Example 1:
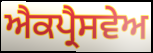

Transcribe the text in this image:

ਐਕਪ੍ਰੈਸਵੇਅ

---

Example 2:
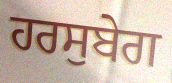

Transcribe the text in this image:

ਹਰਸੁਬੇਗ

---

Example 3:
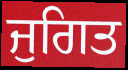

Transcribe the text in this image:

ਜੁਗਿਤ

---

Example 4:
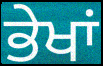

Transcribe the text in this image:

ਭੇਖਾਂ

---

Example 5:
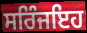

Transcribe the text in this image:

ਸਰਿੰਜਇਹ